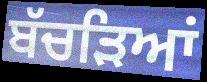
ਬੱਚੜਿਆਂ